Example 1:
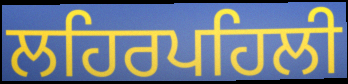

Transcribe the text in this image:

ਲਹਿਰਪਹਿਲੀ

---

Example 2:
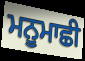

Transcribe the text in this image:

ਮਨੂਮਾਛੀ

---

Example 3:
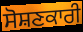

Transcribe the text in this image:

ਸੋਸ਼ਣਕਾਰੀ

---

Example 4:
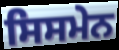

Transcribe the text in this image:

ਸਿਸਮੇਨ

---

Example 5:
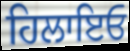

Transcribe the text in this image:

ਹਿਲਾਇਓ